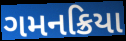
ગમનક્રિયા